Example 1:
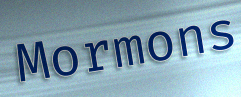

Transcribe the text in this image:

Mormons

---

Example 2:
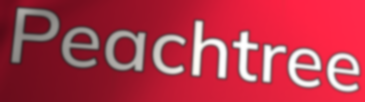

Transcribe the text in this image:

Peachtree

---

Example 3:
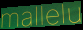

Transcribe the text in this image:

mallelu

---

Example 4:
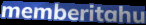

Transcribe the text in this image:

memberitahu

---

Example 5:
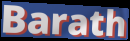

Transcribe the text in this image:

Barath